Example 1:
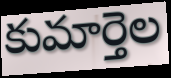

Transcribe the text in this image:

కుమార్తెల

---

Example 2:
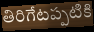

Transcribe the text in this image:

తిరిగేటప్పటికి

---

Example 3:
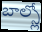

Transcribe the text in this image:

బాల్స్లో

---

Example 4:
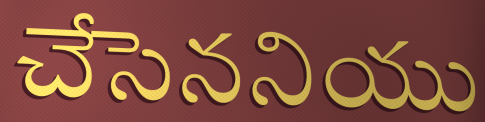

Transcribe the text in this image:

చేసెననియు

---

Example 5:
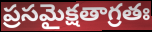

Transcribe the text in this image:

ప్రసమైక్షతాగ్రతః